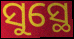
ସୁସ୍ଥେ